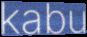
kabu